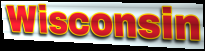
Wisconsin